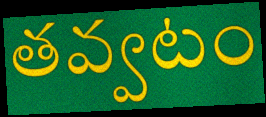
తవ్వటం